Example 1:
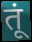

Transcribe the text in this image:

तूं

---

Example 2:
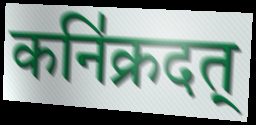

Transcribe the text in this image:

कनि॑क्रदत्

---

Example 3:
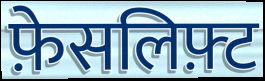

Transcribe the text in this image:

फ़ेसलिफ़्ट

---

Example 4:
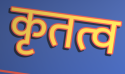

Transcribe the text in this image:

कृतत्व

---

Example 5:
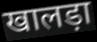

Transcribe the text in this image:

खालड़ा